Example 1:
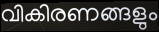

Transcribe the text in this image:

വികിരണങ്ങളും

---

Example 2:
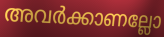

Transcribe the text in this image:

അവർക്കാണല്ലോ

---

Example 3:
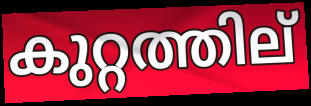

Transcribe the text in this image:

കുറ്റത്തില്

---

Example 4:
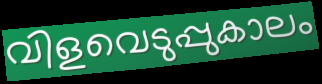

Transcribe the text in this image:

വിളവെടുപ്പുകാലം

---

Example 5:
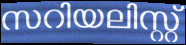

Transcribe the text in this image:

സറിയലിസ്റ്റ്